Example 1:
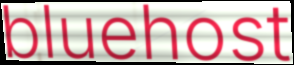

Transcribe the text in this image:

bluehost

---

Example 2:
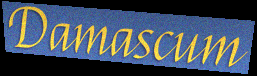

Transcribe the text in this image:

Damascum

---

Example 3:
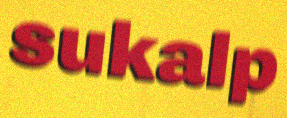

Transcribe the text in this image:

sukalp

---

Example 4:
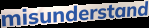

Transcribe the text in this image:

misunderstand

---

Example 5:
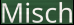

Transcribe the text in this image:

Misch